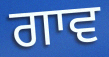
ਗਾਵ